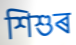
শিশুৰ